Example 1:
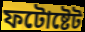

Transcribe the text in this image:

ফটোষ্টেট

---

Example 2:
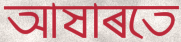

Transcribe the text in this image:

আষাৰতে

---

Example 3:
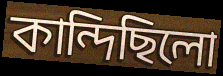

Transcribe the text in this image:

কান্দিছিলো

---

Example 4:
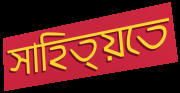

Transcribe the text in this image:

সাহিত্য়তে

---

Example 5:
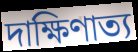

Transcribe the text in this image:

দাক্ষিণাত্য